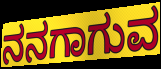
ನನಗಾಗುವ